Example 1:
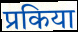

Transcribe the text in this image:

प्रकिया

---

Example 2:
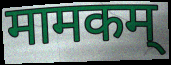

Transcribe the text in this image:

मामकम्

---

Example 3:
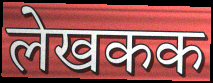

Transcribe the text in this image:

लेखकक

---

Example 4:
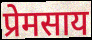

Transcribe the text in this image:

प्रेमसाय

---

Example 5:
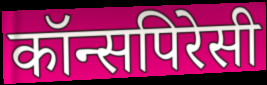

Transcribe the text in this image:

कॉन्सपिरेसी